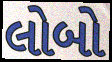
લોબો